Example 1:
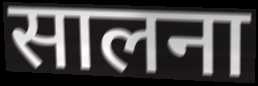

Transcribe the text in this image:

सालना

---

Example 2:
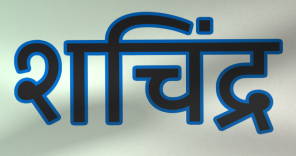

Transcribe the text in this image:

शचिंद्र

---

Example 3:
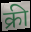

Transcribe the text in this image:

क्री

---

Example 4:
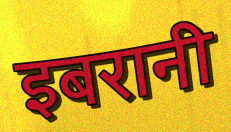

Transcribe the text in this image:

इबरानी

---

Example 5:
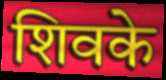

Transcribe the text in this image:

शिवके